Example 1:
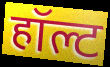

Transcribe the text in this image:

हॉल्‍ट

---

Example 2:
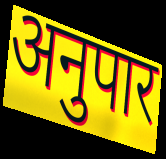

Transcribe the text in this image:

अनुपार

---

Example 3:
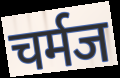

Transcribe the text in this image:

चर्मज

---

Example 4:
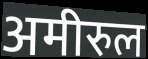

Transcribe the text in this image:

अमीरुल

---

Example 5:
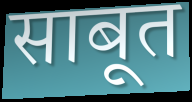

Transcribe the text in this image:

साबूत